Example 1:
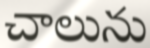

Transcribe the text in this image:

చాలును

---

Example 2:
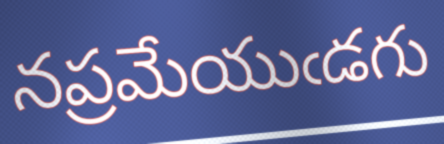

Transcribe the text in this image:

నప్రమేయుఁడగు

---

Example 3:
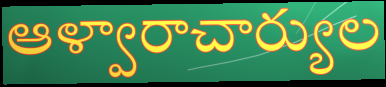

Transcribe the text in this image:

ఆళ్వారాచార్యుల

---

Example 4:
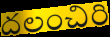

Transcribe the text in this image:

దలంచిరి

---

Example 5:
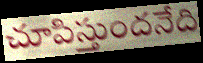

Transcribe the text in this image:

చూపిస్తుందనేది